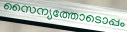
സൈന്യത്തോടൊപ്പം